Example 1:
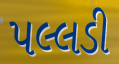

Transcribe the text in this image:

પલ્લડી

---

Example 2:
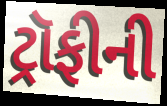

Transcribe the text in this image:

ટ્રૉફીની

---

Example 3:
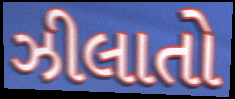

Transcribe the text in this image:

ઝીલાતો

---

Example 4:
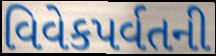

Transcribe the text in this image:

વિવેકપર્વતની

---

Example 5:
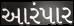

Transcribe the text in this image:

આરંપાર